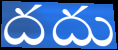
దదు